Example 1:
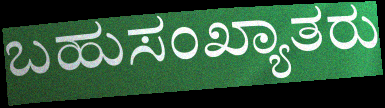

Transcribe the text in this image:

ಬಹುಸಂಖ್ಯಾತರು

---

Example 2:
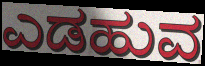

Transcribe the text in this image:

ಎಡಹುವ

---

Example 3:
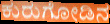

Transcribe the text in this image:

ಕುರುಗೋಡಿನ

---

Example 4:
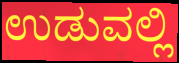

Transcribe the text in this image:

ಉಡುವಲ್ಲಿ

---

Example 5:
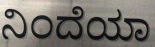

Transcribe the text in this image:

ನಿಂದೆಯಾ